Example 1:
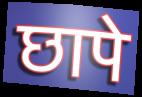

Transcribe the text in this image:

छापे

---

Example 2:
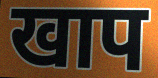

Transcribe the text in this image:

खाप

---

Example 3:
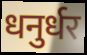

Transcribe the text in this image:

धनुर्धर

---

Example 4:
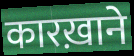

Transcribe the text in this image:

कारख़ाने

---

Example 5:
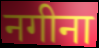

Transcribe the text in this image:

नगीना